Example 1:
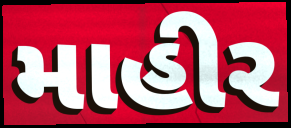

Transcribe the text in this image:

માહીર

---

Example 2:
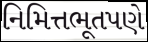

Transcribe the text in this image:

નિમિત્તભૂતપણે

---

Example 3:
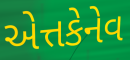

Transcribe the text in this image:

એત્તકેનેવ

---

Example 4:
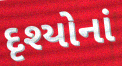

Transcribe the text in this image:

દૃશ્યોનાં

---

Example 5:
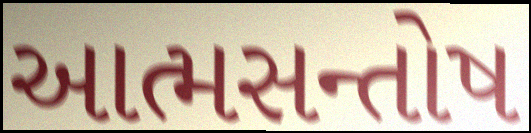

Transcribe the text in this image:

આત્મસન્તોષ